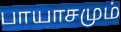
பாயாசமும்